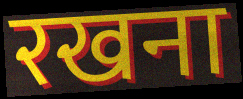
रखना